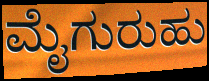
ಮೈಗುರುಹು